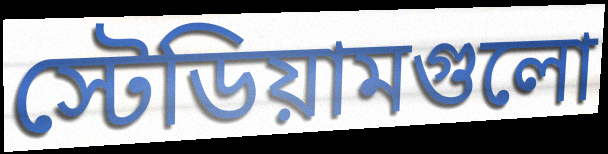
স্টেডিয়ামগুলো